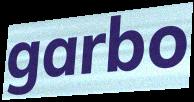
garbo